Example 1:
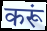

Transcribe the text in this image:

करूं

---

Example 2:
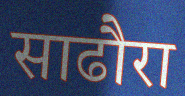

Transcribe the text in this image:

साढौरा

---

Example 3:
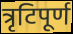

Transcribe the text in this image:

त्रृटिपूर्ण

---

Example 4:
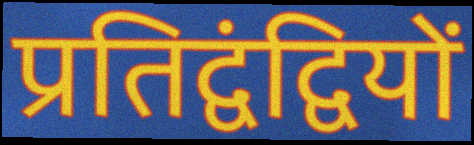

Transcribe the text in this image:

प्रतिद्वंद्वियों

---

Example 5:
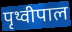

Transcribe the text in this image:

पृथ्वीपाल